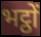
भट्ठों